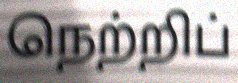
நெற்றிப்